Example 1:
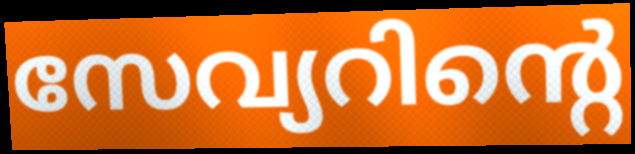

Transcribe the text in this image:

സേവ്യറിന്റെ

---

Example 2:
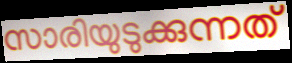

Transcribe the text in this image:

സാരിയുടുക്കുന്നത്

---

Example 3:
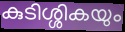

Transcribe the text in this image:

കുടിശ്ശികയും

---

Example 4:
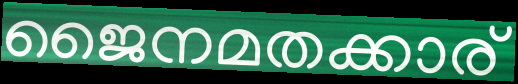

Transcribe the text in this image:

ജൈനമതക്കാര്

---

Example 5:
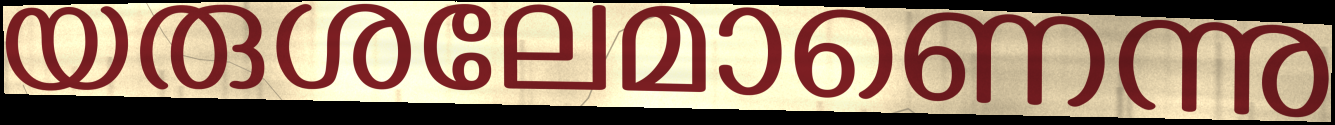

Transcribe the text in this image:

യരുശലേമാണെന്നു